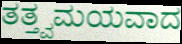
ತತ್ತ್ವಮಯವಾದ